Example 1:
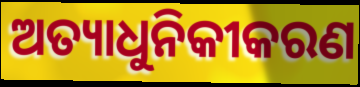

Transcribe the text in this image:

ଅତ୍ୟାଧୁନିକୀକରଣ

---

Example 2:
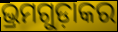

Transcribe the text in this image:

ଭ୍ରମଗୁଡ଼ାକର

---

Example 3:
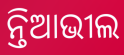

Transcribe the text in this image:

ନ୍ତିଆଭୀଲ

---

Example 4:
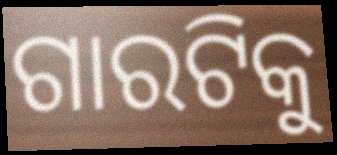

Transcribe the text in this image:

ଗାରଟିକୁ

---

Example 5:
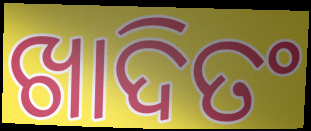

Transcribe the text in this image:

ଖାଦିତଂ